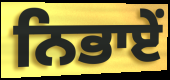
ਨਿਭਾਏਂ